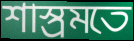
শাস্ত্ৰমতে